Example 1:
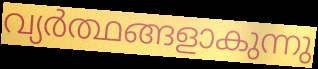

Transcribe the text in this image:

വ്യർത്ഥങ്ങളാകുന്നു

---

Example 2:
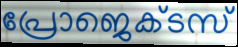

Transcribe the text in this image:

പ്രോജെക്ടസ്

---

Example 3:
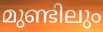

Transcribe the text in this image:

മുണ്ടിലും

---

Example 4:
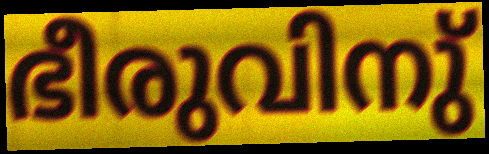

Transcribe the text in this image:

ഭീരുവിനു്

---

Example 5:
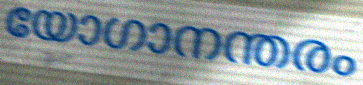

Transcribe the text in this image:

യോഗാനന്തരം